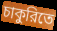
চাকুরিতে